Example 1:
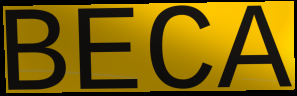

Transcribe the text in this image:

BECA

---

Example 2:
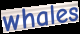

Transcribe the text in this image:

whales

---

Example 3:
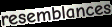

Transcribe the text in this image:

resemblances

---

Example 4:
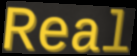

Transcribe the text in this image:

Real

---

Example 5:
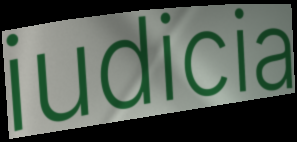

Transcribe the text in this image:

iudicia